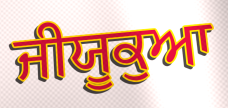
ਜੀਯੂਕੁਆ